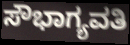
ಸೌಭಾಗ್ಯವತಿ